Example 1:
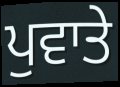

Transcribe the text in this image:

ਪੁਵਾਤੇ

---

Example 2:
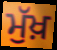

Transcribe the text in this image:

ਮੁੱਖ਼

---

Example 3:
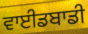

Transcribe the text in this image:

ਵਾਈਡਬਾਡੀ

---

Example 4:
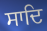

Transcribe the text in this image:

ਸਾਦਿ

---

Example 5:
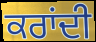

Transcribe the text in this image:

ਕਰਾਂਦੀ